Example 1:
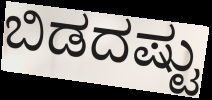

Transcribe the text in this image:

ಬಿಡದಷ್ಟು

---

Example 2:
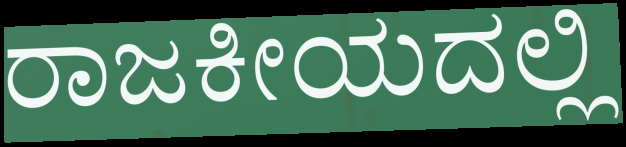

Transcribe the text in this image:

ರಾಜಕೀಯದಲ್ಲಿ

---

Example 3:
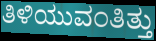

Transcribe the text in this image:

ತಿಳಿಯುವಂತಿತ್ತು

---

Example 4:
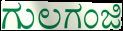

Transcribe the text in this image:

ಗುಲಗಂಜಿ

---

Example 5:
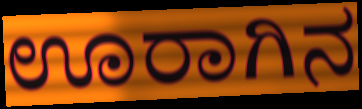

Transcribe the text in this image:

ಊರಾಗಿನ